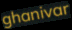
ghanivar